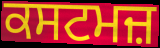
ਕਸਟਮਜ਼